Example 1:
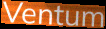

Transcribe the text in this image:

Ventum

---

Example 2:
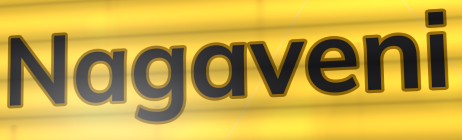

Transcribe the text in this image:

Nagaveni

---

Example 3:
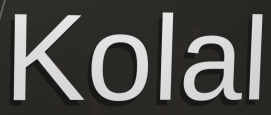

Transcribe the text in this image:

Kolal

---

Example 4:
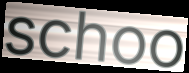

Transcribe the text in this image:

schoo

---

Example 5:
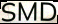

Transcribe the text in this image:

SMD